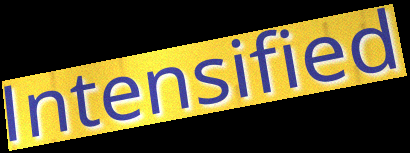
Intensified